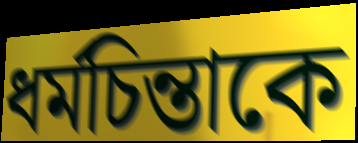
ধর্মচিন্তাকে